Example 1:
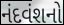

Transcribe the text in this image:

નંદવંશનો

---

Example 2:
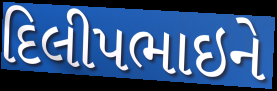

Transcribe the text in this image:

દિલીપભાઇને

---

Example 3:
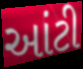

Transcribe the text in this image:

આંટી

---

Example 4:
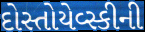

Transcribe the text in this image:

દોસ્તોયેવ્સ્કીની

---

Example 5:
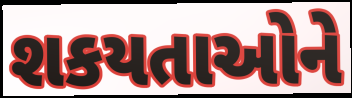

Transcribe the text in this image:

શકયતાઓને